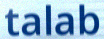
talab